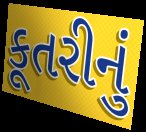
કૂતરીનું